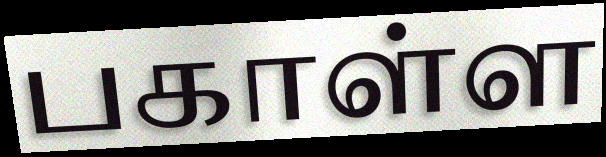
பகாள்ள